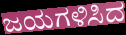
ಜಯಗಳಿಸಿದ